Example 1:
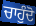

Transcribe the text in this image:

ਚਾਹੁੰਦੋ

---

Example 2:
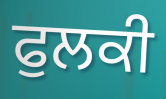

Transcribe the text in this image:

ਫੁਲਕੀ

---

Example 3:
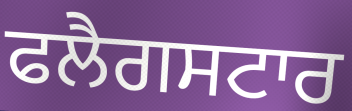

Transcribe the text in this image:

ਫਲੈਗਸਟਾਰ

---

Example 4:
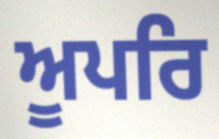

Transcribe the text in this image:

ਅੂਪਰਿ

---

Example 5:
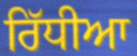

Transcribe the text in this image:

ਰਿੱਧੀਆ